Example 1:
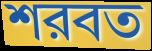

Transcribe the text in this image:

শরবত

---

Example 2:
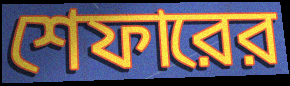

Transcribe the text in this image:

শেফারের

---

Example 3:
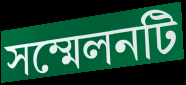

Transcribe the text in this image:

সম্মেলনটি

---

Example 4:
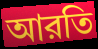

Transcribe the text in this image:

আরতি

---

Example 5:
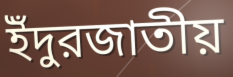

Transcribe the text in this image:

ইঁদুরজাতীয়